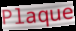
Plaque